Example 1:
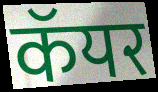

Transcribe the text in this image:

कॅयर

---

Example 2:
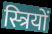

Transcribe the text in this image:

स्‍त्रियों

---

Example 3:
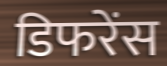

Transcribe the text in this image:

डिफरेंस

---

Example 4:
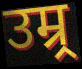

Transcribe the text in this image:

उम्र्र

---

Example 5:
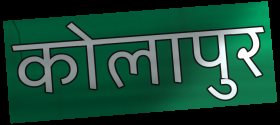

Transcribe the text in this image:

कोलापुर